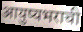
आयुष्यभराची